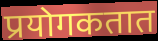
प्रयोगकतात